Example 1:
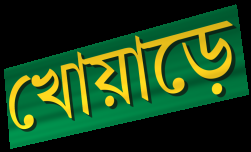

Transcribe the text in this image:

খোয়াড়ে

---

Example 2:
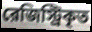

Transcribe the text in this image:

রেজিস্ট্রিকৃত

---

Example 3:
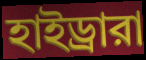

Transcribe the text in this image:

হাইড্রারা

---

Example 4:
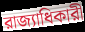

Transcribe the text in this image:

রাজ্যাধিকারী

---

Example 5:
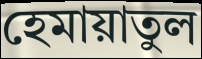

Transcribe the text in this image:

হেমায়াতুল